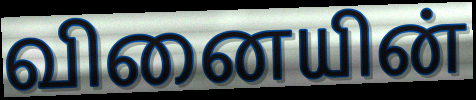
வினையின்